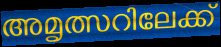
അമൃത്സറിലേക്ക്